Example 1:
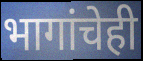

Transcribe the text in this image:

भागांचेही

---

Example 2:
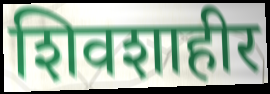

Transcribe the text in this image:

शिवशाहीर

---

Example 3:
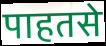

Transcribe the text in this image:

पाहतसे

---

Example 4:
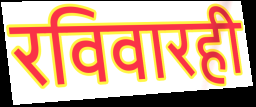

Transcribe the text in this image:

रविवारही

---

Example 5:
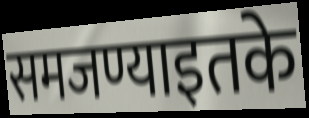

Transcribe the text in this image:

समजण्याइतके